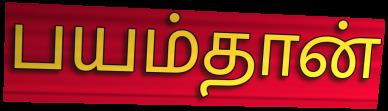
பயம்தான்